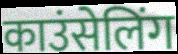
काउंसेलिंग